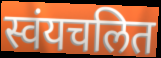
स्वंयचलित